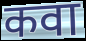
कवा